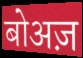
बोअज़